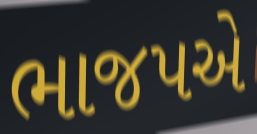
ભાજપએ